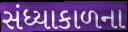
સંધ્યાકાળના